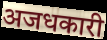
अजधकारी